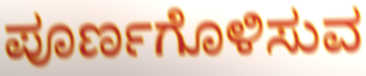
ಪೂರ್ಣಗೊಳಿಸುವ